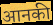
आनकी